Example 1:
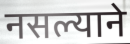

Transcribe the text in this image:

नसल्याने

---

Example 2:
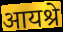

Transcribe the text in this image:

आयश्रे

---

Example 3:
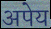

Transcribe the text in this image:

अपेय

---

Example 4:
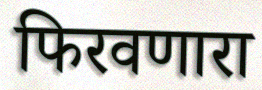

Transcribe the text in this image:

फिरवणारा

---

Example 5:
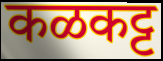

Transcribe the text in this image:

कळकट्ट